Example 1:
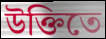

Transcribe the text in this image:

উক্তিতে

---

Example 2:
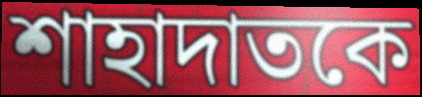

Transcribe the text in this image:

শাহাদাতকে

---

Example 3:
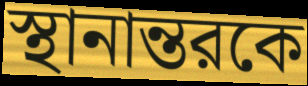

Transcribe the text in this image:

স্থানান্তরকে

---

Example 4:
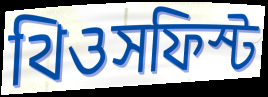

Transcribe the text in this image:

থিওসফিস্ট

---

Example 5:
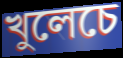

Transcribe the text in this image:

খুলেচে